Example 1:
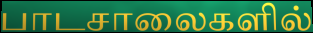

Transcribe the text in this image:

பாடசாலைகளில்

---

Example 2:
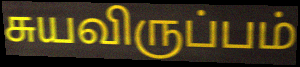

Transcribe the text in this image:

சுயவிருப்பம்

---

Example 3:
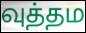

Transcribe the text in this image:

வுத்தம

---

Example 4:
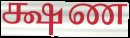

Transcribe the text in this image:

க்ஷண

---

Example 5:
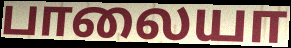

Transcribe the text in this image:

பாலையா